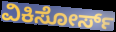
ವಿಕಿಸೋರ್ಸ್